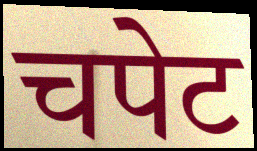
चपेट